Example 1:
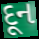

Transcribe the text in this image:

દૂન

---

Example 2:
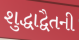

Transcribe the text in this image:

શુદ્ધાદ્વૈતની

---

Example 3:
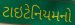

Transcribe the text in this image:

ટાઇટેનિયમનો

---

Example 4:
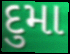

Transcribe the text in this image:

દુમા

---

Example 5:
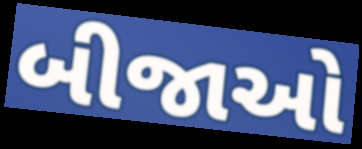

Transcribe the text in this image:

બીજાઓ